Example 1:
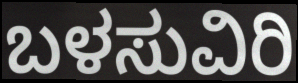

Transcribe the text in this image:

ಬಳಸುವಿರಿ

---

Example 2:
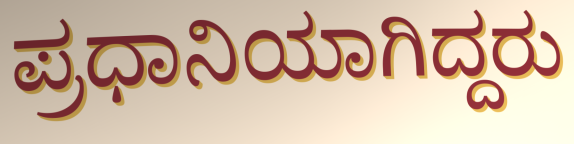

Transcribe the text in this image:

ಪ್ರಧಾನಿಯಾಗಿದ್ದರು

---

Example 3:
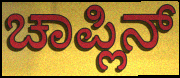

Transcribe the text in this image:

ಚಾಪ್ಲಿನ್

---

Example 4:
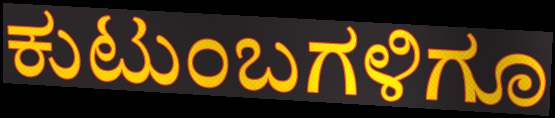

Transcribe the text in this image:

ಕುಟುಂಬಗಳಿಗೂ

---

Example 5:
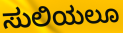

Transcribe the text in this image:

ಸುಲಿಯಲೂ